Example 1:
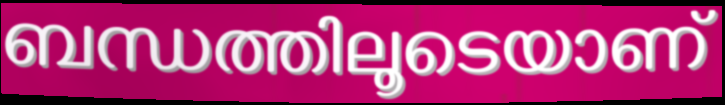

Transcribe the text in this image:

ബന്ധത്തിലൂടെയാണ്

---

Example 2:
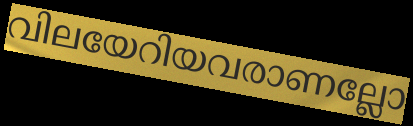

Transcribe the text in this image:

വിലയേറിയവരാണല്ലോ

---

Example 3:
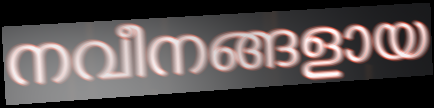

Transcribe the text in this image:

നവീനങ്ങളായ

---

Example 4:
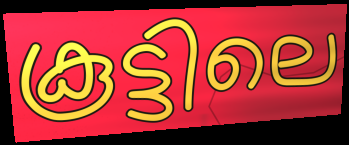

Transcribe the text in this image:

കൂട്ടിലെ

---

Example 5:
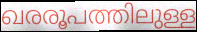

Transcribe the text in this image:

ഖരരൂപത്തിലുള്ള